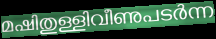
മഷിതുള്ളിവീണുപടർന്ന